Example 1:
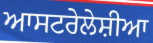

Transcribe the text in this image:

ਆਸਟਰੇਲੇਸ਼ੀਆ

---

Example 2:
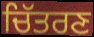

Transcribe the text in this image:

ਚਿੱਤਰਣ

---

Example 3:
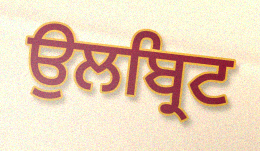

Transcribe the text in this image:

ਉਲਬ੍ਰਿਟ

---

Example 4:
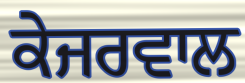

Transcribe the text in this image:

ਕੇਜਰਵਾਲ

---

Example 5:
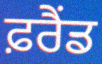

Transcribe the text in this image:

ਫ਼ਰੈਂਡ